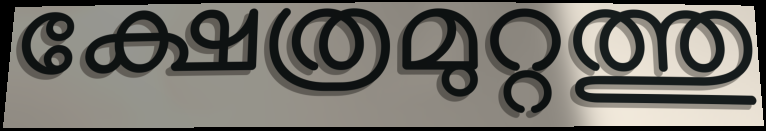
ക്ഷേത്രമുറ്റത്തു